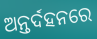
ଅନ୍ତର୍ଦହନରେ